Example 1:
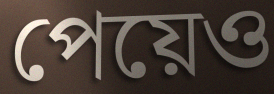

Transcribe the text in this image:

পেয়েও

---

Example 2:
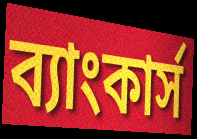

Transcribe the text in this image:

ব্যাংকার্স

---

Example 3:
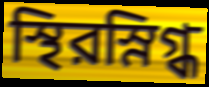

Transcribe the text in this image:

স্থিরস্নিগ্ধ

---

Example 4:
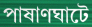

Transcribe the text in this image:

পাষাণঘাটে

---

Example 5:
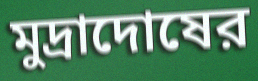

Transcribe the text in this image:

মুদ্রাদোষের